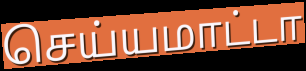
செய்யமாட்டா